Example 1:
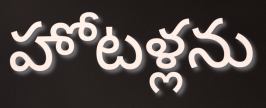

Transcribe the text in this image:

హోటళ్లను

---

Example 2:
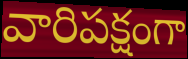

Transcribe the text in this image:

వారిపక్షంగా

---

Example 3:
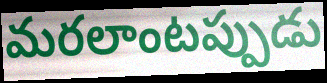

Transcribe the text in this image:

మరలాంటప్పుడు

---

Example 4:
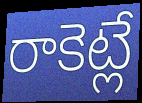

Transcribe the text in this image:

రాకెట్లే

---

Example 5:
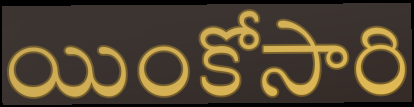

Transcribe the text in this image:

యింకోసారి